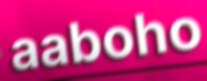
aaboho